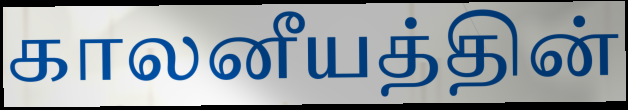
காலனீயத்தின்